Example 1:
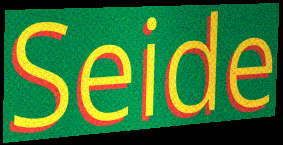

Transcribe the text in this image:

Seide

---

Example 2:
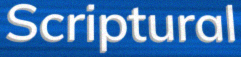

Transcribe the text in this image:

Scriptural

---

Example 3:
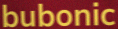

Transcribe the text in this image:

bubonic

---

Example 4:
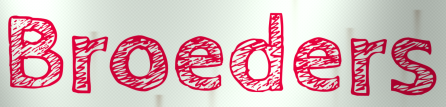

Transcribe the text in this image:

Broeders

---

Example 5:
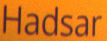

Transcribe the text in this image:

Hadsar